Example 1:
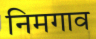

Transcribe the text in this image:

निमगाव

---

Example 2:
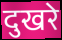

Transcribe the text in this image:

दुखरे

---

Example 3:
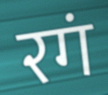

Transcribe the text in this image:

रगं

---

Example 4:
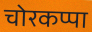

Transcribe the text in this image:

चोरकप्पा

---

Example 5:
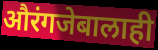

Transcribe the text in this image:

औरंगजेबालाही